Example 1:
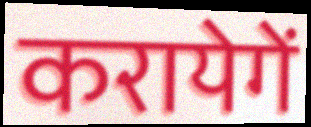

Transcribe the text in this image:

करायेगें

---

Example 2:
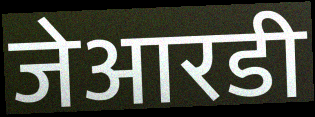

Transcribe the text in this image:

जेआरडी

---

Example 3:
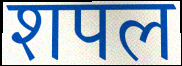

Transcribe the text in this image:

शपल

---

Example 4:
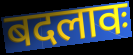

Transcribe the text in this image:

बदलावः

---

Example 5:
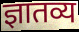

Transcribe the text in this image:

ज्ञातव्य